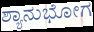
ಶ್ಯಾನುಭೋಗ